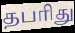
தபரிது